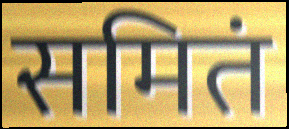
समितं